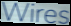
Wires